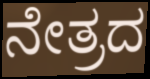
ನೇತ್ರದ